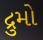
દ્રુમો